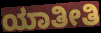
ಯಾತೀತಿ